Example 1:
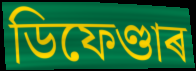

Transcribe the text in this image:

ডিফেণ্ডাৰ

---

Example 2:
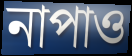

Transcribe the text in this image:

নাপাও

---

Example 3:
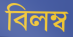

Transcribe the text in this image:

বিলম্ব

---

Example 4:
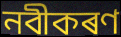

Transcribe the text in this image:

নবীকৰণ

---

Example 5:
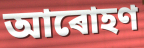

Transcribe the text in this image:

আৰোহণ